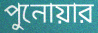
পুনোয়ার